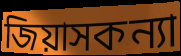
জিয়াসকন্যা